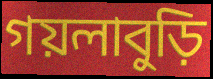
গয়লাবুড়ি